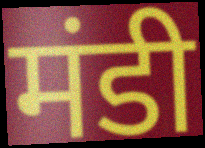
मंडी